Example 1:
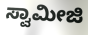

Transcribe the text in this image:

ಸ್ವಾಮೀಜಿ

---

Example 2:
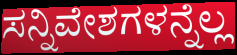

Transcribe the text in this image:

ಸನ್ನಿವೇಶಗಳನ್ನೆಲ್ಲ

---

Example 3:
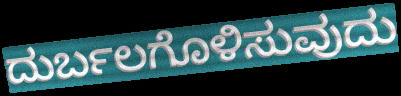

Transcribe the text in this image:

ದುರ್ಬಲಗೊಳಿಸುವುದು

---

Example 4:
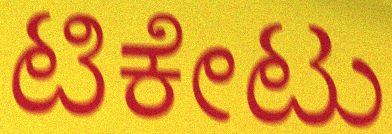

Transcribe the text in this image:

ಟಿಕೇಟು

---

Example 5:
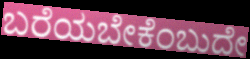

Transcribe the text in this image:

ಬರೆಯಬೇಕೆಂಬುದೇ